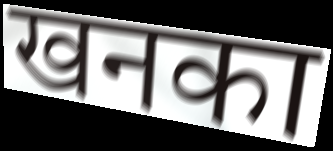
खनका